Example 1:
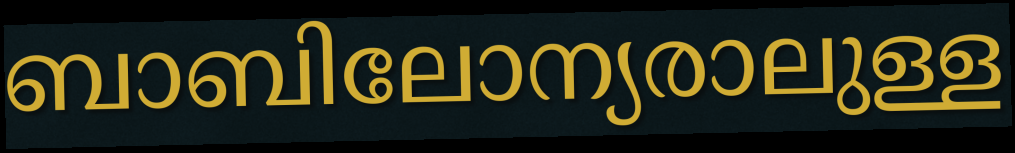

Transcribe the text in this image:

ബാബിലോന്യരാലുള്ള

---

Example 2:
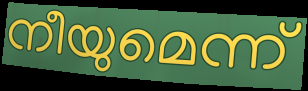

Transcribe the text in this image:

നീയുമെന്ന്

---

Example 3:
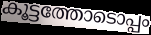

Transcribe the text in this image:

കൂട്ടത്തോടൊപ്പം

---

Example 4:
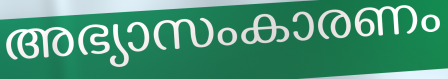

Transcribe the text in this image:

അഭ്യാസംകാരണം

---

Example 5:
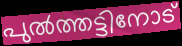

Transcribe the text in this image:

പുൽത്തട്ടിനോട്